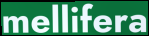
mellifera